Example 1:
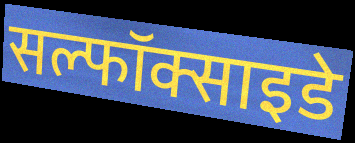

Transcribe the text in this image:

सल्फॉक्साइडे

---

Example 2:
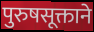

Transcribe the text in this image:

पुरुषसूक्ताने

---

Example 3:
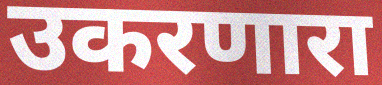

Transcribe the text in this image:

उकरणारा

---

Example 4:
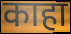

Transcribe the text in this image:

काहा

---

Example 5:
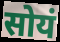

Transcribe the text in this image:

सोयं